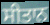
ਸੀਤਾਨ